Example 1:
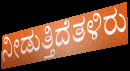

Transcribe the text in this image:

ನೀಡುತ್ತಿದೆತಳಿರು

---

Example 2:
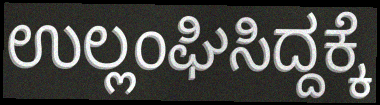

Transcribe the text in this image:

ಉಲ್ಲಂಘಿಸಿದ್ದಕ್ಕೆ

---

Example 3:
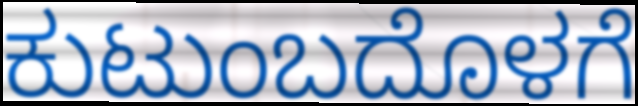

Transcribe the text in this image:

ಕುಟುಂಬದೊಳಗೆ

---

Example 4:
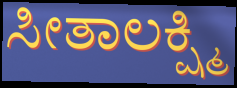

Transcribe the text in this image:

ಸೀತಾಲಕ್ಷ್ಮಿ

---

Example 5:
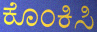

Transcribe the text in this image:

ಕೊಂಕಿಸಿ